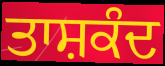
ਤਾਸ਼ਕੰਦ